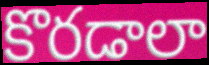
కొరడాలా